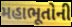
મહાભૂતોની